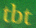
tbt